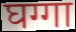
घग्गा